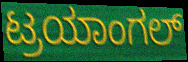
ಟ್ರಯಾಂಗಲ್